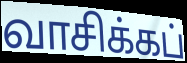
வாசிக்கப்